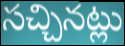
సచ్చినట్లు